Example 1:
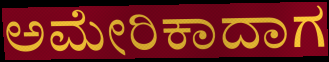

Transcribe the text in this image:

ಅಮೇರಿಕಾದಾಗ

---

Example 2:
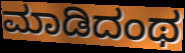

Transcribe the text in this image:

ಮಾಡಿದಂಥ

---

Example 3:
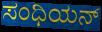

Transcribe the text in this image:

ಸಂಧಿಯನ್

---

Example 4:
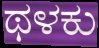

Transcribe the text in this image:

ಥಳಕು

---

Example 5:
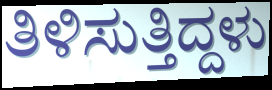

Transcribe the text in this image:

ತಿಳಿಸುತ್ತಿದ್ದಳು